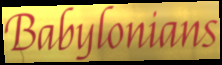
Babylonians